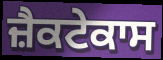
ਜ਼ੈਕਟੇਕਾਸ